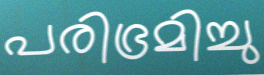
പരിഭ്രമിച്ചു